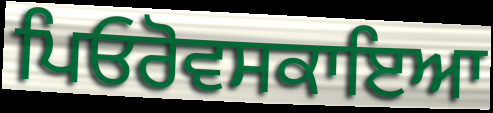
ਪਿਓਰੋਵਸਕਾਇਆ